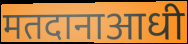
मतदानाआधी